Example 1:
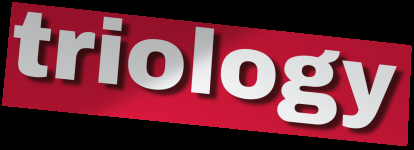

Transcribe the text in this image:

triology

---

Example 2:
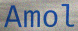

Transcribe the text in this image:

Amol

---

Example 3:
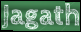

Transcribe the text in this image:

Jagath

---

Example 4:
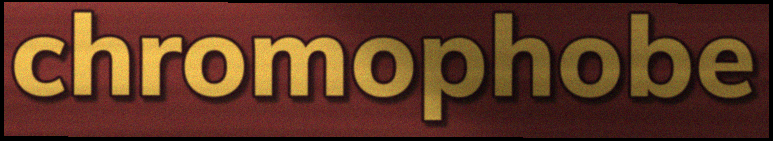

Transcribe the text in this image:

chromophobe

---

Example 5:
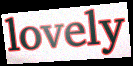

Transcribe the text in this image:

lovely